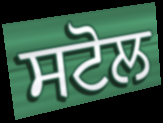
ਸਟੋਲ